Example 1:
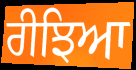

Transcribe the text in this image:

ਰੀਝਿਆ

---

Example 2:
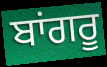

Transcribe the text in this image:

ਬਾਂਗਰੂ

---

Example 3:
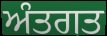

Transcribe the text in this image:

ਅੰਤਗਤ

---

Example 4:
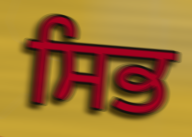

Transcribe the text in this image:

ਸਿਭ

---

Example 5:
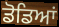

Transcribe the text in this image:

ਡੋਡਿਆਂ